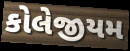
કોલેજીયમ